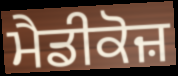
ਮੈਡੀਕੋਜ਼